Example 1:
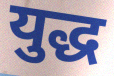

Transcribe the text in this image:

युद्ध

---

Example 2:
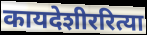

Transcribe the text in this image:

कायदेशीररित्या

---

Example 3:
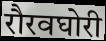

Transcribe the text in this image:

रौरवघोरी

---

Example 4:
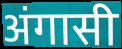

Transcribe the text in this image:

अंगासी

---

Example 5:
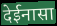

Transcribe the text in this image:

देईनासा